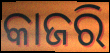
କାଜରି